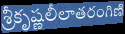
శ్రీకృష్ణలీలాతరంగిణి